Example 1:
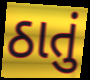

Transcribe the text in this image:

ઠાતું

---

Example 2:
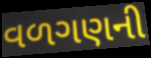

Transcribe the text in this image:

વળગણની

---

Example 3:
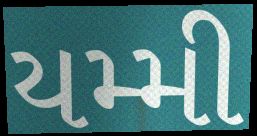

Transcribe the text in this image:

યમ્મી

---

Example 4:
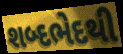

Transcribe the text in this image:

શબ્દભેદથી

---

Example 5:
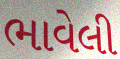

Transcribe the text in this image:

ભાવેલી